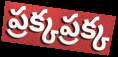
ప్రక్కప్రక్క